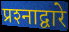
प्रश्नाद्वारे